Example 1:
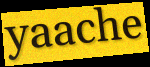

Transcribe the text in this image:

yaache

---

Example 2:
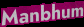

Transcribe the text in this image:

Manbhum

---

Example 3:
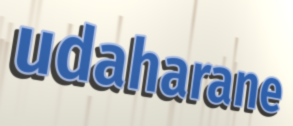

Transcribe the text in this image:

udaharane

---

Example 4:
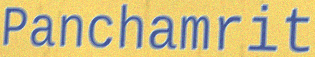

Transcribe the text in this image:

Panchamrit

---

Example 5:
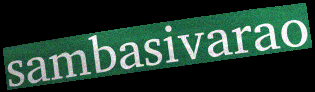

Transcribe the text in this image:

sambasivarao